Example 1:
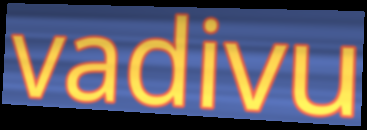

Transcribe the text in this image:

vadivu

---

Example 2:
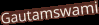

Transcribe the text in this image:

Gautamswami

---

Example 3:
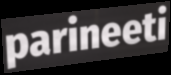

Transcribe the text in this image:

parineeti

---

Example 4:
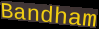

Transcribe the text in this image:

Bandham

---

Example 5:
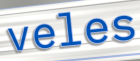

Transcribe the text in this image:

veles